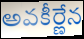
అవకీర్ణేన